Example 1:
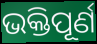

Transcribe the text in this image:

ଭକ୍ତିପୂର୍ଣ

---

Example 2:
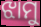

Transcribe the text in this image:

ଝାମୁ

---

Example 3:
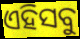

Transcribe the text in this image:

ଏହିସବୁ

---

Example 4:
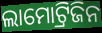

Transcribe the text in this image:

ଲାମୋଟ୍ରିଜିନ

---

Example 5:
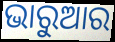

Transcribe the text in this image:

ଭାରୁଆର